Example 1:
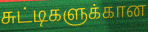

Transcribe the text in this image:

சுட்டிகளுக்கான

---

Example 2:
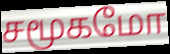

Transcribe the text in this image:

சமூகமோ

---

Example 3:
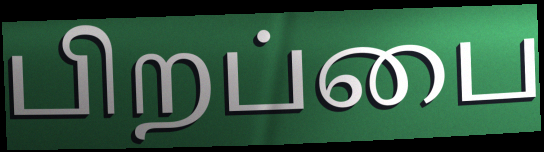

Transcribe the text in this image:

பிறப்பை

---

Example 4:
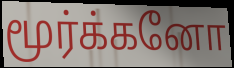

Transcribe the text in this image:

மூர்க்கனோ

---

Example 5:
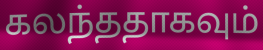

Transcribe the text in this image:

கலந்ததாகவும்